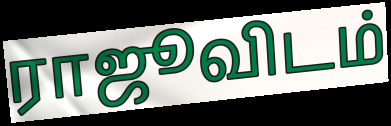
ராஜூவிடம்